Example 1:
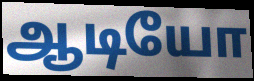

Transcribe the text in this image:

ஆடியோ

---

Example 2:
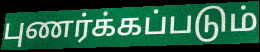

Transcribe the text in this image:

புணர்க்கப்படும்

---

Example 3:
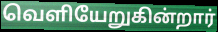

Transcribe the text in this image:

வெளியேறுகின்றார்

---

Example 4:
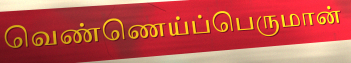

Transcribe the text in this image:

வெண்ணெய்ப்பெருமான்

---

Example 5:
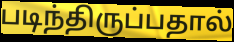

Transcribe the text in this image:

படிந்திருப்பதால்